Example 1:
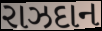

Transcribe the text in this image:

રાઝદાન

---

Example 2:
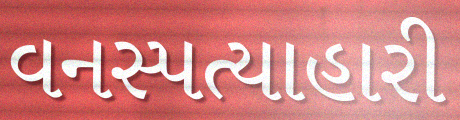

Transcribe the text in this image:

વનસ્પત્યાહારી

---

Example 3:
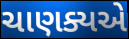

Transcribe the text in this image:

ચાણક્યએ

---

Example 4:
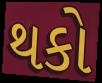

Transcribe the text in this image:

થકો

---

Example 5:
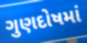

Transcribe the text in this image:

ગુણદોષમાં